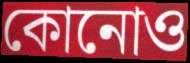
কোনোও